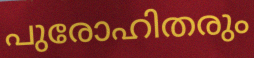
പുരോഹിതരും